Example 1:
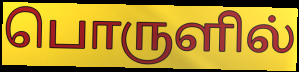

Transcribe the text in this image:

பொருளில்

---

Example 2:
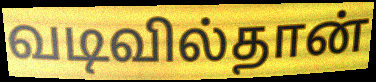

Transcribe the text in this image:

வடிவில்தான்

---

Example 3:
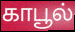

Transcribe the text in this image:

காபூல்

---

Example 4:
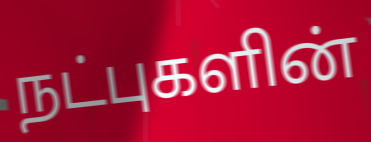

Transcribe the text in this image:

நட்புகளின்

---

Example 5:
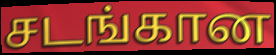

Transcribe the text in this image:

சடங்கான